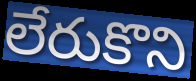
లేరుకొని